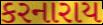
કરનારાય